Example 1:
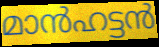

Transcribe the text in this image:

മാൻഹട്ടൻ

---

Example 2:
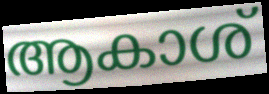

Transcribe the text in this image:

ആകാശ്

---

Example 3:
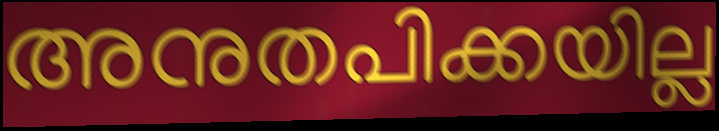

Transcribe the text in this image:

അനുതപിക്കയില്ല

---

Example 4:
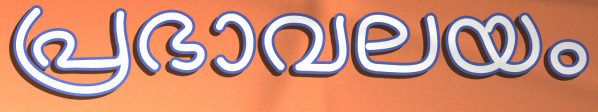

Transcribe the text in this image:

പ്രഭാവലയം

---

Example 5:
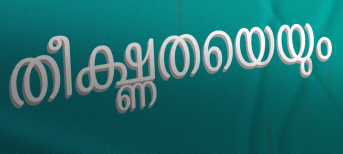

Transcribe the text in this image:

തീക്ഷ്ണതയെയും